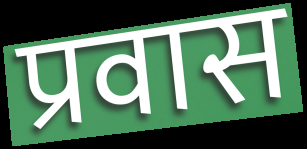
प्रवास